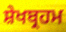
ਸ਼ੇਖਬ੍ਰਹਮ